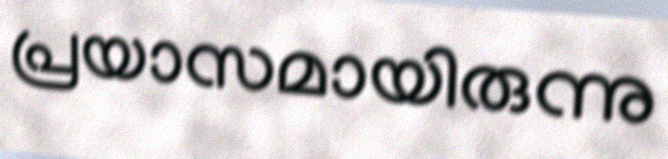
പ്രയാസമായിരുന്നു